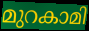
മുറകാമി